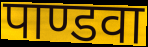
पाण्डवा